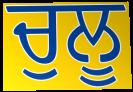
ਚੁਲੂ